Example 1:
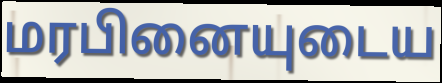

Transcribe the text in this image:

மரபினையுடைய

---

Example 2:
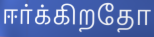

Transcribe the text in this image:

ஈர்க்கிறதோ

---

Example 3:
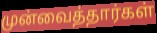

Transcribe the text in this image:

முன்வைத்தார்கள்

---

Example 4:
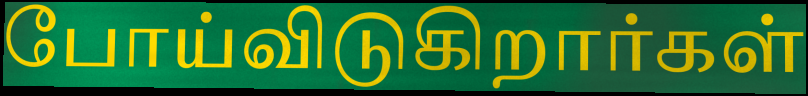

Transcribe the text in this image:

போய்விடுகிறார்கள்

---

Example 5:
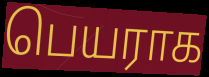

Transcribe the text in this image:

பெயராக